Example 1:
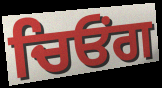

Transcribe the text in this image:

ਚਿਓਂਗ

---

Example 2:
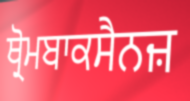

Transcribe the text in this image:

ਥ੍ਰੋਮਬਾਕਸੈਨਜ਼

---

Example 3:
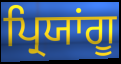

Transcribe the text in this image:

ਪ੍ਰਿਯਾਂਗੂ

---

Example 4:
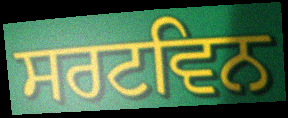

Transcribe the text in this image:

ਸਰਟਵਿਨ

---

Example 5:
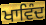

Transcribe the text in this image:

ਖਾਵਿੰਦ